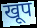
खूप